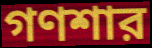
গণশার